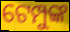
ଟେମ୍ପୁଙ୍କ